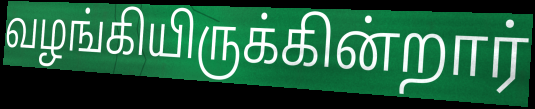
வழங்கியிருக்கின்றார்